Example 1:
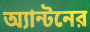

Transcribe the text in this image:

অ্যান্টনের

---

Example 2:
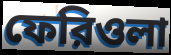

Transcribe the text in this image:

ফেরিওলা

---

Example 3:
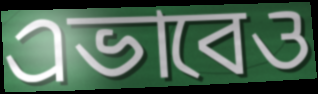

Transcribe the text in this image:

এভাবেও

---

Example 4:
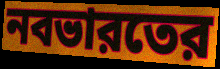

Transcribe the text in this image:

নবভারতের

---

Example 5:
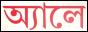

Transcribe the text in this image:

অ্যালে